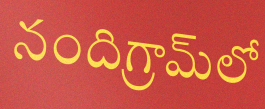
నందిగ్రామ్‌లో